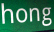
hong